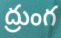
ద్రుంగ